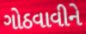
ગોઠવાવીને